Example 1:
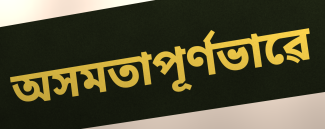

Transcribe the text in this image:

অসমতাপূৰ্ণভাৱে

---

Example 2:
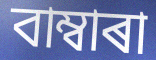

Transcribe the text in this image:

বাম্বাৰা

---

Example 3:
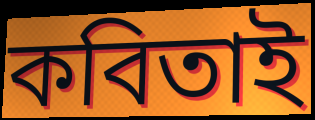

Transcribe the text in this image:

কবিতাই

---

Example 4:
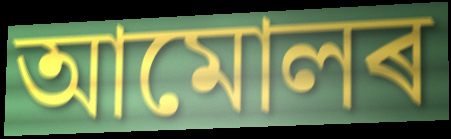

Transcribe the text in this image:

আমোলৰ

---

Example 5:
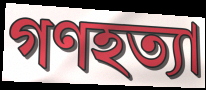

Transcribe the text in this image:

গণহত্যা